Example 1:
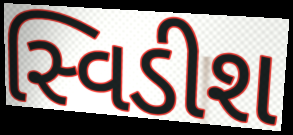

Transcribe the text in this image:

સ્વિડીશ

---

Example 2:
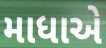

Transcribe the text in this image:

માધાએ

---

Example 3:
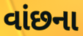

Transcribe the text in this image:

વાંછના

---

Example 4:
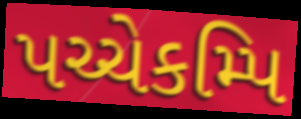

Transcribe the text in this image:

પચ્ચેકમ્પિ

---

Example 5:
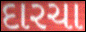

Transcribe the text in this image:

દારચા